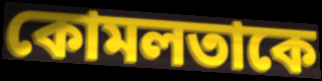
কোমলতাকে